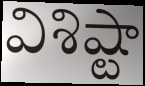
విశిష్టా